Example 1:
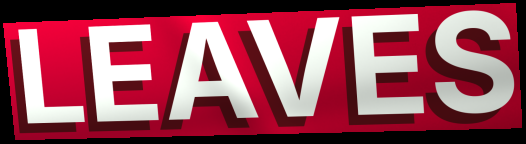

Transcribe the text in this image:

LEAVES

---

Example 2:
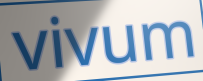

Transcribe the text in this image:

vivum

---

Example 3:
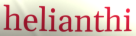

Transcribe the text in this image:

helianthi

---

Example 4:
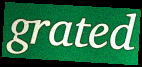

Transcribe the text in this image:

grated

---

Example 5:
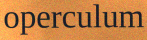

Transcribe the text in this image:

operculum